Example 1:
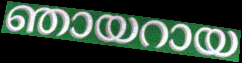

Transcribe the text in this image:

ഞായറായ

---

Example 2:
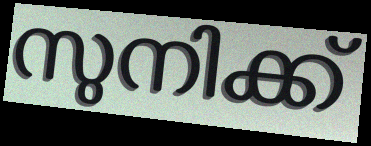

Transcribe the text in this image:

സുനിക്ക്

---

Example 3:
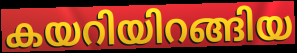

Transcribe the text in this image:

കയറിയിറങ്ങിയ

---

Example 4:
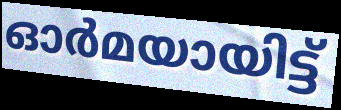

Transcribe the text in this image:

ഓർമയായിട്ട്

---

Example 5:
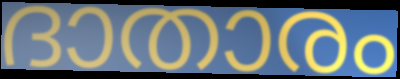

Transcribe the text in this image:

ദാതാരം